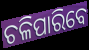
ଚଳିପାରିବେ